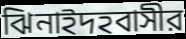
ঝিনাইদহবাসীর